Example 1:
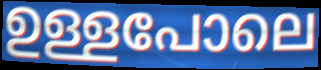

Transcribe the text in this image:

ഉള്ളപോലെ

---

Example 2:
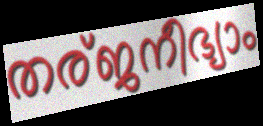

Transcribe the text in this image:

തര്ജനീഭ്യാം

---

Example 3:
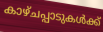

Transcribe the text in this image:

കാഴ്ചപ്പാടുകൾക്ക്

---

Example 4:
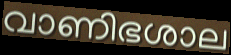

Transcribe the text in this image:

വാണിഭശാല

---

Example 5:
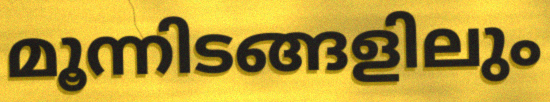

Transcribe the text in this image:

മൂന്നിടങ്ങളിലും